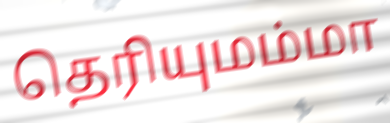
தெரியுமம்மா